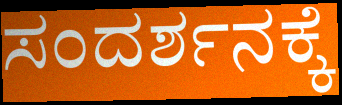
ಸಂದರ್ಶನಕ್ಕೆ